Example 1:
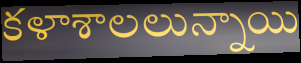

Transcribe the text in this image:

కళాశాలలున్నాయి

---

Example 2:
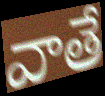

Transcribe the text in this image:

వాతే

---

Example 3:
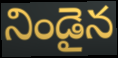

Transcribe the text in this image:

నిండైన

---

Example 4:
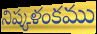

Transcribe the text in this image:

నిష్కళంకము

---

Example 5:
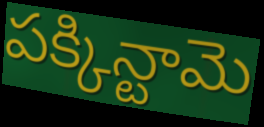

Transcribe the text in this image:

పక్కిన్టామె